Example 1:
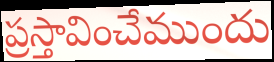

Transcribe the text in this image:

ప్రస్తావించేముందు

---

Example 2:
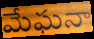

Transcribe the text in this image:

మేఘనా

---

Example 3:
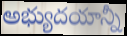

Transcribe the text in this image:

అభ్యుదయాన్నీ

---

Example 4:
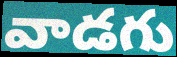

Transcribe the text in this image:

వాడగు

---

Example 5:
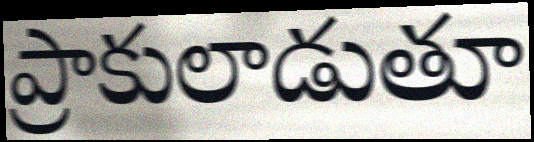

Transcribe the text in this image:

ప్రాకులాడుతూ